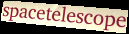
spacetelescope